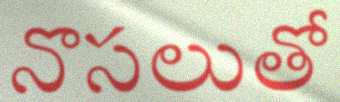
నొసలుతో